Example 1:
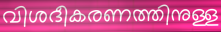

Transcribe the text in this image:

വിശദീകരണത്തിനുള്ള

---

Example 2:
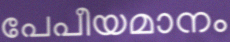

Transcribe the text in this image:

പേപീയമാനം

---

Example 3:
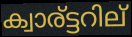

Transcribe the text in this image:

ക്വാര്ട്ടറില്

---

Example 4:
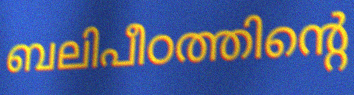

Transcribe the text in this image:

ബലിപീഠത്തിന്റെ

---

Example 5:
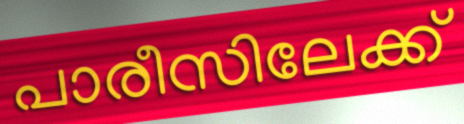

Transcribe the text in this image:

പാരീസിലേക്ക്